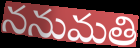
ననుమతి